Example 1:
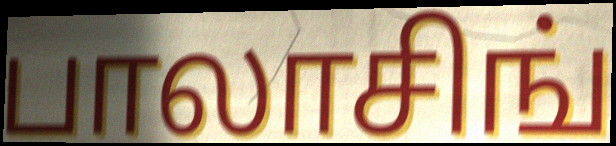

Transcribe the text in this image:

பாலாசிங்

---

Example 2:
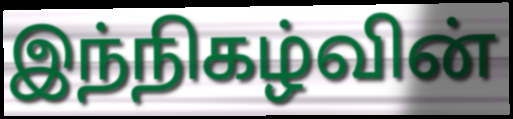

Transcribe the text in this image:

இந்நிகழ்வின்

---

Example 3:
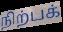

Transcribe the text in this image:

நிற்பக்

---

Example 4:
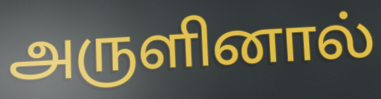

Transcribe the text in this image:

அருளினால்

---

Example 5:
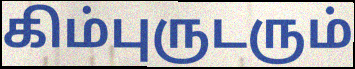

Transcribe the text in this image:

கிம்புருடரும்